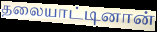
தலையாட்டினான்